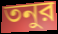
তনুর